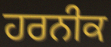
ਹਰਨੀਕ